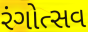
રંગોત્સવ